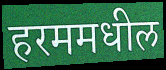
हरममधील